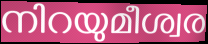
നിറയുമീശ്വര